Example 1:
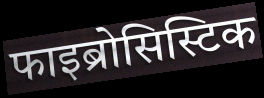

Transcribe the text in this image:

फाइब्रोसिस्टिक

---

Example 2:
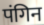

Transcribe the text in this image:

पंगिन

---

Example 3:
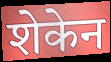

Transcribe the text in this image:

शेकेन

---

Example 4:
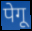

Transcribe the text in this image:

पेगू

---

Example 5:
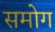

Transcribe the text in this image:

समोग